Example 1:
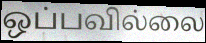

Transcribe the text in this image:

ஒப்பவில்லை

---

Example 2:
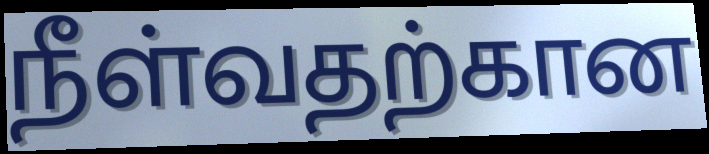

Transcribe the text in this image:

நீள்வதற்கான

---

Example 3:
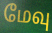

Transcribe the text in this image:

மேவு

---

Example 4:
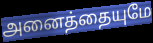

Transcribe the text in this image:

அனைத்தையுமே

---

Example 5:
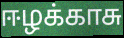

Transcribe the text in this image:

ஈழக்காசு